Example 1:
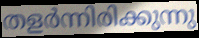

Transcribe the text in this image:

തളർന്നിരിക്കുന്നു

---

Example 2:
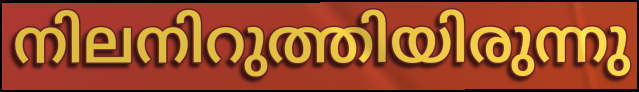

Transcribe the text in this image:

നിലനിറുത്തിയിരുന്നു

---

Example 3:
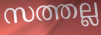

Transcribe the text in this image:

സത്തല്ല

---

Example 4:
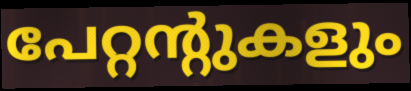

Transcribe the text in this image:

പേറ്റന്റുകളും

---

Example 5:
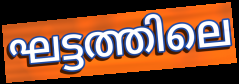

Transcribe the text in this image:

ഘട്ടത്തിലെ